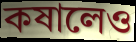
কষালেও